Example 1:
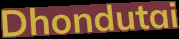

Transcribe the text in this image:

Dhondutai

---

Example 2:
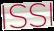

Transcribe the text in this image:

ISSI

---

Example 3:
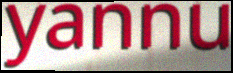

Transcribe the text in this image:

yannu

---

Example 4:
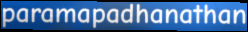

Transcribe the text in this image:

paramapadhanathan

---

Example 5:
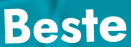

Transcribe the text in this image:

Beste